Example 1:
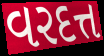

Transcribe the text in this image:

વરદત્ત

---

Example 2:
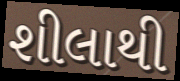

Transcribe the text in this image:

શીલાથી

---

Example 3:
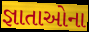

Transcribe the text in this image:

જ્ઞાતાઓના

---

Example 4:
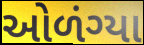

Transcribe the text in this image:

ઓળંગ્યા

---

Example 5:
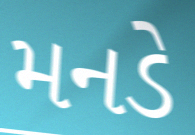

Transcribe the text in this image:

મનડે